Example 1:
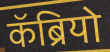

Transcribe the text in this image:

कॅब्रियो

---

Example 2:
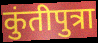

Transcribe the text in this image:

कुंतीपुत्रा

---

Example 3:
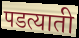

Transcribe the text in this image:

पडत्याती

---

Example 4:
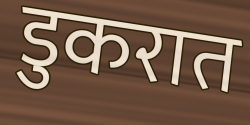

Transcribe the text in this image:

डुकरात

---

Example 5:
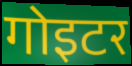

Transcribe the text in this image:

गोइटर